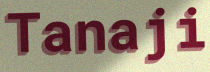
Tanaji